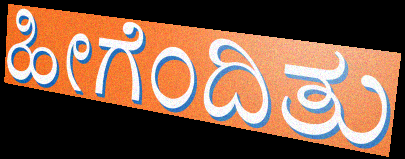
ಹೀಗೆಂದಿತು